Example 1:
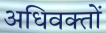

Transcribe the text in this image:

अधिवक्तों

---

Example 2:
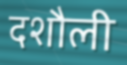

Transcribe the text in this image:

दशौली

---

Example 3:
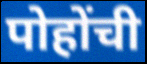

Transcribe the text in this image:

पोहोंची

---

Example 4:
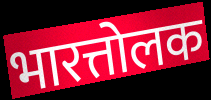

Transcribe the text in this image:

भारत्तोलक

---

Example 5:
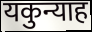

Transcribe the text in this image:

यकुन्याह